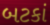
બટકાં